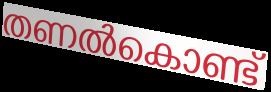
തണൽകൊണ്ട്